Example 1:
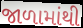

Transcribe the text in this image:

જાળામાંથી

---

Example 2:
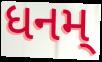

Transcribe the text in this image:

ધનમ્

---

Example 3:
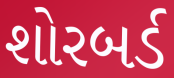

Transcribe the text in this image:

શોરબર્ડ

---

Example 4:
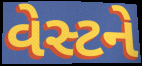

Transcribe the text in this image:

વેસ્ટને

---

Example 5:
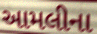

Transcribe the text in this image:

આમલીના